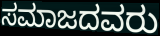
ಸಮಾಜದವರು